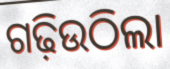
ଗଢ଼ିଉଠିଲା